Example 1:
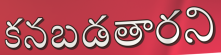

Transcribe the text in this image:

కనబడతారని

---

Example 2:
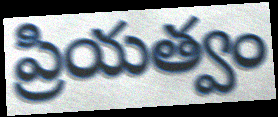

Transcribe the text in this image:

ప్రియత్వం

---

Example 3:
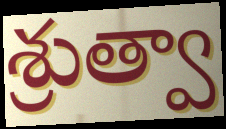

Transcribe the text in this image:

శ్రుత్వా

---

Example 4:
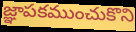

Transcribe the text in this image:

జ్ఞాపకముంచుకొని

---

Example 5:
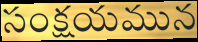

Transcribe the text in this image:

సంక్షయమున